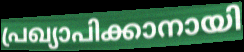
പ്രഖ്യാപിക്കാനായി